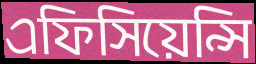
এফিসিয়েন্সি